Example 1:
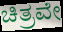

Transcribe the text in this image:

ಚಿತ್ರವೇ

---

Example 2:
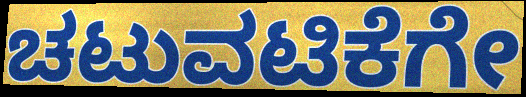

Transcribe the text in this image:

ಚಟುವಟಿಕೆಗೇ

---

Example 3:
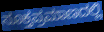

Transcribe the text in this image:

ಸೂಕ್ತಪ್ರಮಾಣದಲ್ಲಿ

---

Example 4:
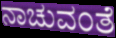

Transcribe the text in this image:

ನಾಚುವಂತೆ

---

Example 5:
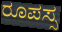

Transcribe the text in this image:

ರೂಪಸ್ಸ